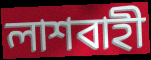
লাশবাহী